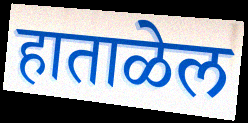
हाताळेल